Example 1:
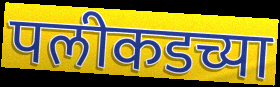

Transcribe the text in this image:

पलीकडच्या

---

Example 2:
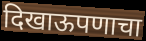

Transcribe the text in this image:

दिखाऊपणाचा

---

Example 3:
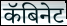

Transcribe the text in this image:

कॅबिनेट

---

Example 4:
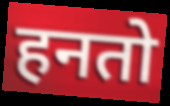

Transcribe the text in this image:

हनतो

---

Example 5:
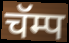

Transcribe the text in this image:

चॅम्प